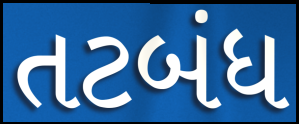
તટબંધ